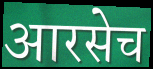
आरसेच